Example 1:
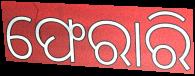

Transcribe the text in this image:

ଫେରାରି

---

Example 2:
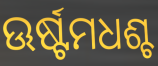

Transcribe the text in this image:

ଊର୍ଷ୍ଟମଧଶ୍ଚ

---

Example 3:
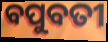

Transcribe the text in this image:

ବପୁବତୀ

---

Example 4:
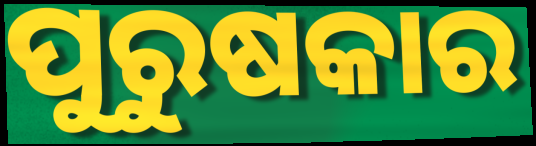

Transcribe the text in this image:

ପୁରୁଷକାର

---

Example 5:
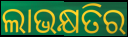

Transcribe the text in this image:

ଲାଭକ୍ଷତିର